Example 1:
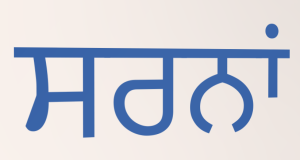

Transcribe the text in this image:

ਸਰਨਾਂ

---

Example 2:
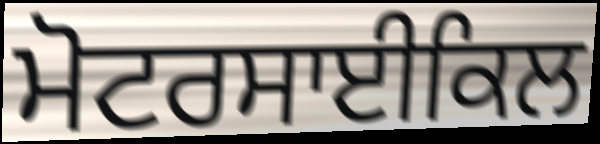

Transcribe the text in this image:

ਮੋਟਰਸਾਈਕਿਲ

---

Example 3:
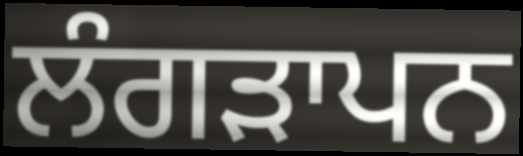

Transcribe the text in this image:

ਲੰਗੜਾਪਨ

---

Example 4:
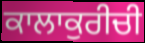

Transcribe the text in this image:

ਕਾਲਾਕੁਰੀਚੀ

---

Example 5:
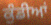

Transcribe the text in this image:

ਕੁੰਡੀਆਂ